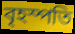
বৃহস্পতি